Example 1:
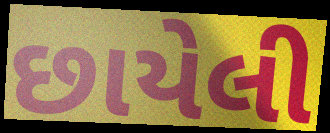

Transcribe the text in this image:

છાયેલી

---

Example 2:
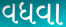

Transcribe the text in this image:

વધવા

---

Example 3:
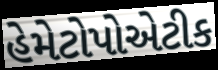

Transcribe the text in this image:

હેમેટોપોએટીક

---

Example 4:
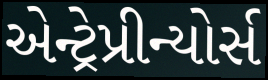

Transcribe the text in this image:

એન્ટ્રેપ્રીન્યોર્સ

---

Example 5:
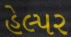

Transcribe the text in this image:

હેલ્પર